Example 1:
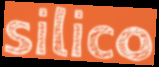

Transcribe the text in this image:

silico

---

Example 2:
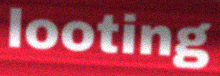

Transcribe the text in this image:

looting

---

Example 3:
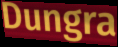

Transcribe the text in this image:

Dungra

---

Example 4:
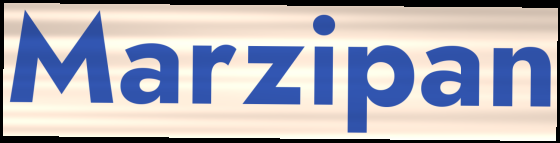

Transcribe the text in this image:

Marzipan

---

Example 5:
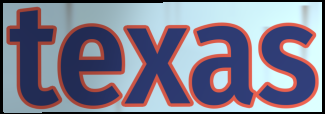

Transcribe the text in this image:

texas